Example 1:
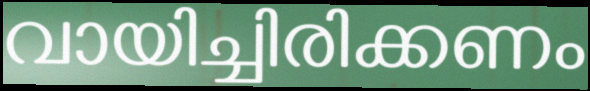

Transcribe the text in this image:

വായിച്ചിരിക്കണം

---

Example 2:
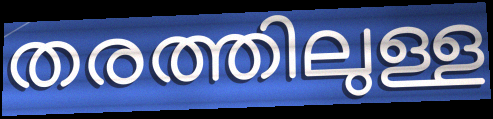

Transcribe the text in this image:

തരത്തിലുള്ള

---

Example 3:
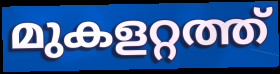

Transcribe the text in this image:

മുകളറ്റത്ത്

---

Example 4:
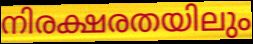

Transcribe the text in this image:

നിരക്ഷരതയിലും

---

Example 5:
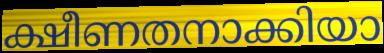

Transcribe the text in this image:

ക്ഷീണതനാക്കിയാ